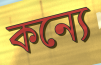
কন্যে